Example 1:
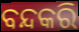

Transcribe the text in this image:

ବନ୍ଦକରି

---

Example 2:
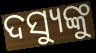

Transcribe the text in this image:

ଦସ୍ୟୁଙ୍କୁ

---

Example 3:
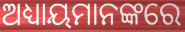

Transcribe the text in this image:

ଅଧ୍ୟାୟମାନଙ୍କରେ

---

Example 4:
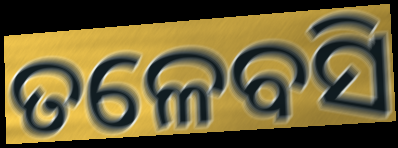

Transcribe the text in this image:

ତଳେବସି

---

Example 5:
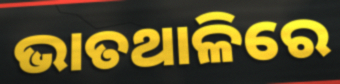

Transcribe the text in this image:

ଭାତଥାଳିରେ